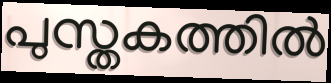
പുസ്തകത്തിൽ